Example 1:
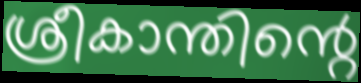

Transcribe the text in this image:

ശ്രീകാന്തിന്റെ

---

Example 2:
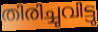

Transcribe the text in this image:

തിരിച്ചുവിട്ടു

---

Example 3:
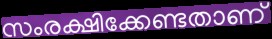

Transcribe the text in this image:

സംരക്ഷിക്കേണ്ടതാണ്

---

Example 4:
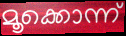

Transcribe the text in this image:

മൂക്കൊന്ന്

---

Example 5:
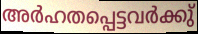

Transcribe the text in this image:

അർഹതപ്പെട്ടവർക്കു്